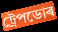
ট্ৰেপডোৰ